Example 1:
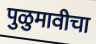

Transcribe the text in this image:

पुळुमावीचा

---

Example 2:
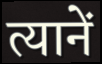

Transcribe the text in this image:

त्यानें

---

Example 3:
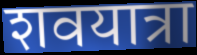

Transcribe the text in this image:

शवयात्रा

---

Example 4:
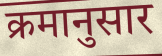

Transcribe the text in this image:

क्रमानुसार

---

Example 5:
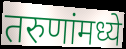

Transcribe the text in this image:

तरुणांमध्ये